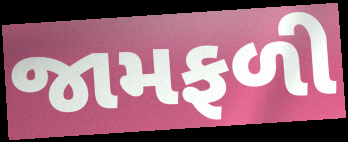
જામફળી